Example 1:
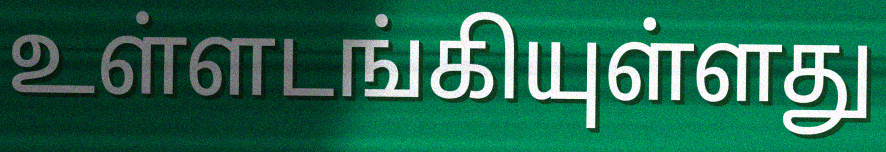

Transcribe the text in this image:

உள்ளடங்கியுள்ளது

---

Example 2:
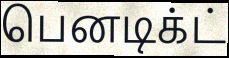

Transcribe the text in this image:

பெனடிக்ட்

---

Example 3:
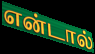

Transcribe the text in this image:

என்டால்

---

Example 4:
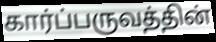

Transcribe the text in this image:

கார்ப்பருவத்தின்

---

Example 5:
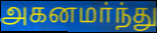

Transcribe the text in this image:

அகனமர்ந்து